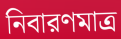
নিবারণমাত্র